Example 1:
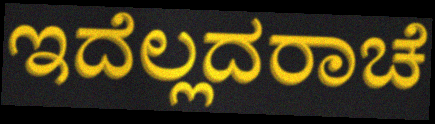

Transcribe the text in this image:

ಇದೆಲ್ಲದರಾಚೆ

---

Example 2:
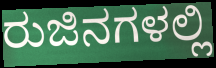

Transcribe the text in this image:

ರುಜಿನಗಳಲ್ಲಿ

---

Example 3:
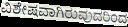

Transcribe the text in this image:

ವಿಶೇಷವಾಗಿರುವುದರಿಂದ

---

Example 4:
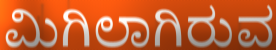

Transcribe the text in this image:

ಮಿಗಿಲಾಗಿರುವ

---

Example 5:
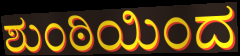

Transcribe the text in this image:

ಶುಂಠಿಯಿಂದ